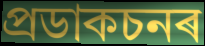
প্ৰডাকচনৰ